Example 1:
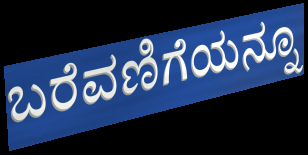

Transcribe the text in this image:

ಬರೆವಣಿಗೆಯನ್ನೂ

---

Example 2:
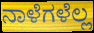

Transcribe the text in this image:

ನಾಳೆಗಳೆಲ್ಲ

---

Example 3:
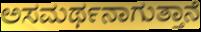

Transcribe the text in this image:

ಅಸಮರ್ಥನಾಗುತ್ತಾನೆ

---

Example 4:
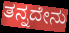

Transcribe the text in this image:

ತನ್ನದೇನು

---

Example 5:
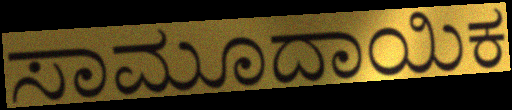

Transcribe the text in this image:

ಸಾಮೂದಾಯಿಕ